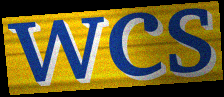
wcs